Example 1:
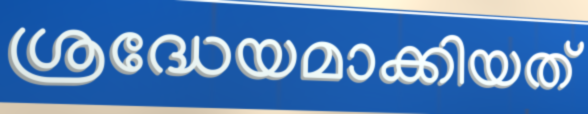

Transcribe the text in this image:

ശ്രദ്ധേയമാക്കിയത്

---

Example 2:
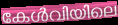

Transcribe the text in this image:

കേൾവിയിലെ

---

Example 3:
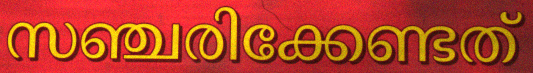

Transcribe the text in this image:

സഞ്ചരിക്കേണ്ടത്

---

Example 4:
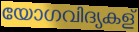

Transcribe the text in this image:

യോഗവിദ്യകള്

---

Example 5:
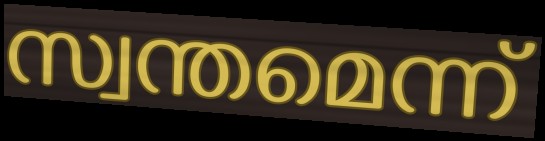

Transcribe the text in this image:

സ്വന്തമെന്ന്